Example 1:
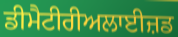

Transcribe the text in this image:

ਡੀਮੈਟੀਰੀਅਲਾਈਜ਼ਡ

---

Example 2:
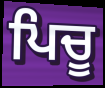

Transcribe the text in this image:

ਪਿਚੂ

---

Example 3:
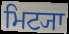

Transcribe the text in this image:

ਮਿਟ੍ਯਾ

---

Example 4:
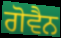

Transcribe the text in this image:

ਗੋਵੈਨ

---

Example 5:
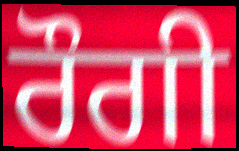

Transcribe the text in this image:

ਰੌਗੀ